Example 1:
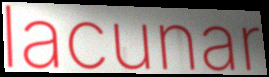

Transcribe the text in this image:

lacunar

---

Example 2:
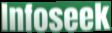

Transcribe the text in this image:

Infoseek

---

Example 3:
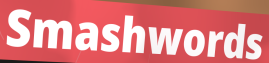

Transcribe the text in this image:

Smashwords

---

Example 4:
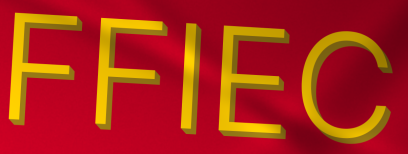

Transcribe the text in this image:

FFIEC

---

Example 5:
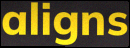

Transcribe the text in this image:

aligns